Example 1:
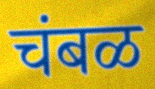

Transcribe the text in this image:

चंबळ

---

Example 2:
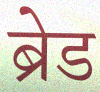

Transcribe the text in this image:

ब्रेड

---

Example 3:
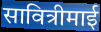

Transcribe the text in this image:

सावित्रीमाई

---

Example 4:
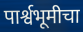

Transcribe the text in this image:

पार्श्वभूमीचा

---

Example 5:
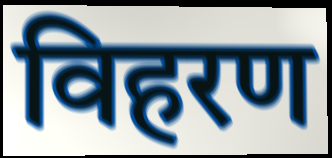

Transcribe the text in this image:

विहरण